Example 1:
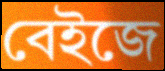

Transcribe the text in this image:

বেইজে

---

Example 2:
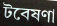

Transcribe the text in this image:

টবেষণা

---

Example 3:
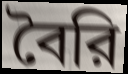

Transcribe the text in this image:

বৈরি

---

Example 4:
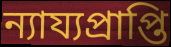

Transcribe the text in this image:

ন্যায্যপ্রাপ্তি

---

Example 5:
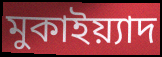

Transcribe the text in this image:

মুকাইয়্যাদ